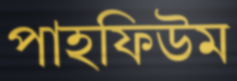
পাহফিউম